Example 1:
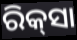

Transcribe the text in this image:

ରିକ୍‌ସା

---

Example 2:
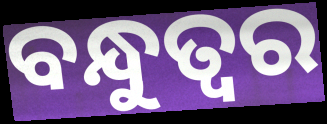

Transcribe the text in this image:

ବନ୍ଧୁତ୍ବର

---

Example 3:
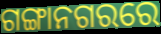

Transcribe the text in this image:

ଗଙ୍ଗାନଗରରେ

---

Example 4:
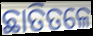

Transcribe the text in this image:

ଛାତିତଳେ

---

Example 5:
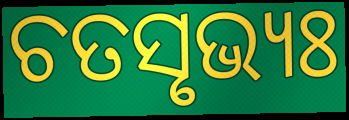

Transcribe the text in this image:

ଚତସୃଭ୍ୟଃ